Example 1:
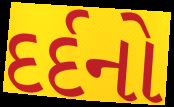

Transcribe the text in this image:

દર્દનો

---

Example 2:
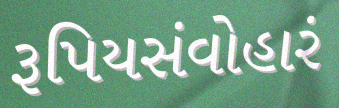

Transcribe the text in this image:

રૂપિયસંવોહારં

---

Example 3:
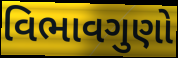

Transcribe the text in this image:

વિભાવગુણો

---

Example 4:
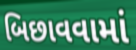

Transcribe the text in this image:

બિછાવવામાં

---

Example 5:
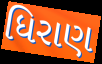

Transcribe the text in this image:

ધિરાણ